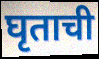
घृताची